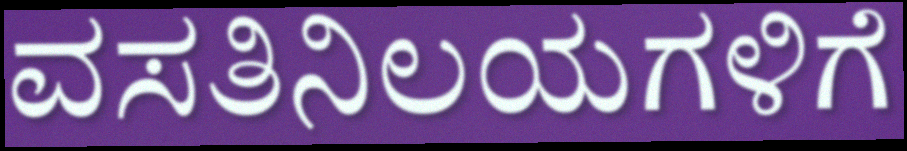
ವಸತಿನಿಲಯಗಳಿಗೆ